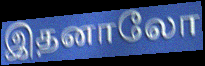
இதனாலோ